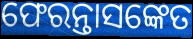
ଫେରନ୍ତାସଙ୍କେତ